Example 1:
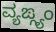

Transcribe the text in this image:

ವ್ಯಙ್ಗ್ಯಂ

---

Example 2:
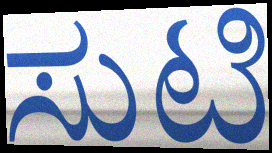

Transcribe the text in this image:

ಸುಟಿ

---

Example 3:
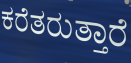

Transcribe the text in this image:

ಕರೆತರುತ್ತಾರೆ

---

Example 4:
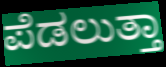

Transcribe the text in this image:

ಪೆಡಲುತ್ತಾ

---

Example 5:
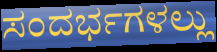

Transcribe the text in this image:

ಸಂದರ್ಭಗಳಲ್ಲು